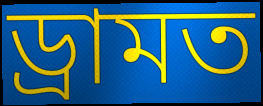
ড্ৰামত